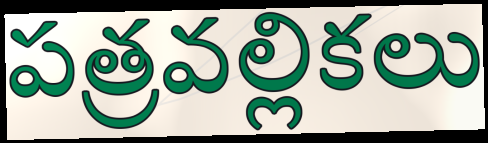
పత్రవల్లికలు